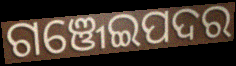
ଗଞ୍ଜେଇପଦର